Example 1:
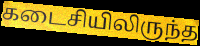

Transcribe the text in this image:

கடைசியிலிருந்த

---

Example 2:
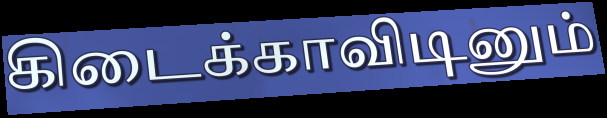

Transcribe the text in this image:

கிடைக்காவிடினும்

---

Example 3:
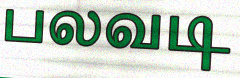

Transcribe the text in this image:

பலவடி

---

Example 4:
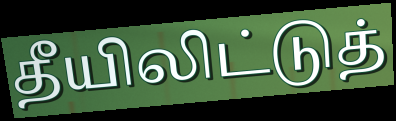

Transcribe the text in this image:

தீயிலிட்டுத்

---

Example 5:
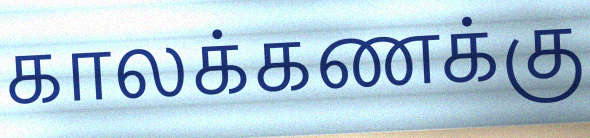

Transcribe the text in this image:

காலக்கணக்கு